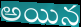
అయిన